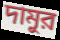
দামুর